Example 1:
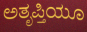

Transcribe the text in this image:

ಅತೃಪ್ತಿಯೂ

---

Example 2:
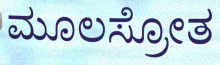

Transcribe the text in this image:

ಮೂಲಸ್ರೋತ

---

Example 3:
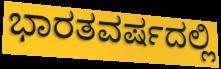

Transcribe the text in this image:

ಭಾರತವರ್ಷದಲ್ಲಿ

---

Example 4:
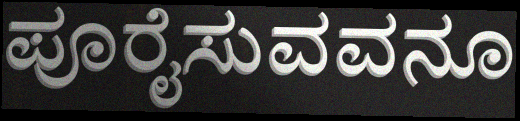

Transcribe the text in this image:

ಪೂರೈಸುವವನೂ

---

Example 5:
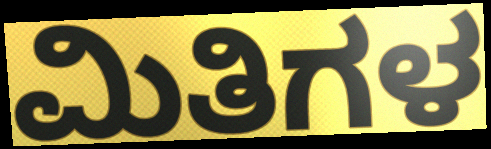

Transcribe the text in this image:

ಮಿತಿಗಳ